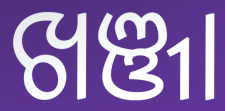
ଖଞ୍ଜା